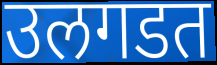
उलगडत